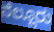
ನೆಲ್ಲೂರು